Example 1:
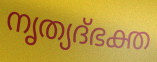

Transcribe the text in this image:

നൃത്യദ്ഭക്ത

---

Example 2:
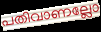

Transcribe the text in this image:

പതിവാണല്ലോ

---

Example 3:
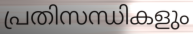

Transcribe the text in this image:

പ്രതിസന്ധികളും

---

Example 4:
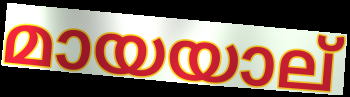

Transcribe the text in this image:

മായയാല്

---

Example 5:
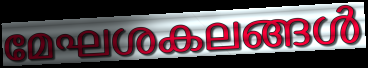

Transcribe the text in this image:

മേഘശകലങ്ങൾ